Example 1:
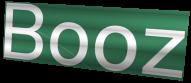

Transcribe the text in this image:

Booz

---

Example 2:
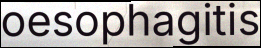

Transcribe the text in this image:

oesophagitis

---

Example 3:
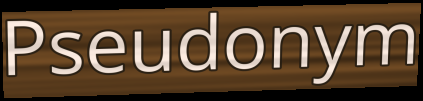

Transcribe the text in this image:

Pseudonym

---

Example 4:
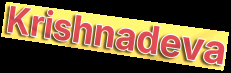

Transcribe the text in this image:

Krishnadeva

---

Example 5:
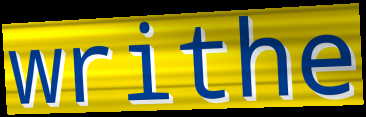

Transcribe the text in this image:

writhe